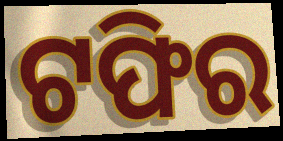
ଟଫିର